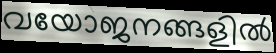
വയോജനങ്ങളിൽ